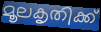
മൂലകൃതിക്ക്